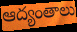
ఆద్యంతాలు